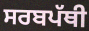
ਸਰਬਪੱਥੀ